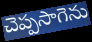
చెప్పసాగెను